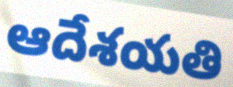
ఆదేశయతి